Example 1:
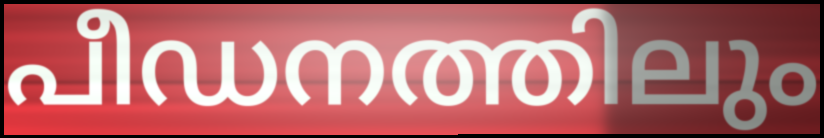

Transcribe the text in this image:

പീഡനത്തിലും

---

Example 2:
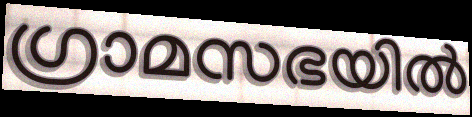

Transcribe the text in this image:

ഗ്രാമസഭയിൽ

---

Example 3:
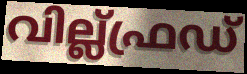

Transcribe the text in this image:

വില്ല്ഫ്രഡ്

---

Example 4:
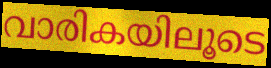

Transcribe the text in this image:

വാരികയിലൂടെ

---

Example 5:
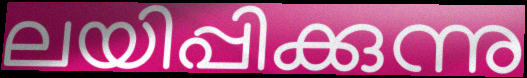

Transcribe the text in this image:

ലയിപ്പിക്കുന്നു